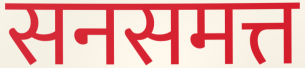
सनसमत्त